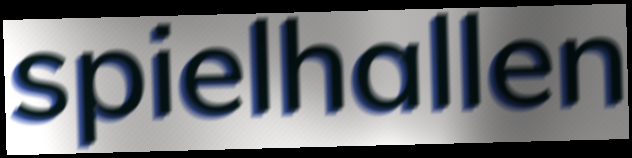
spielhallen